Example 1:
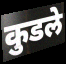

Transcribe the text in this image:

कुडले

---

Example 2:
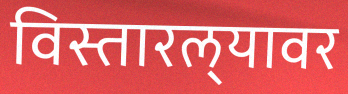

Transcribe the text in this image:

विस्तारल्यावर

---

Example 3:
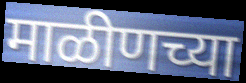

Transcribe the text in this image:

माळीणच्या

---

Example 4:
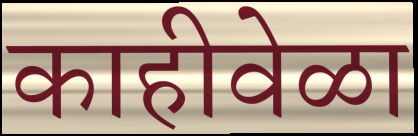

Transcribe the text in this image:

काहीवेळा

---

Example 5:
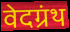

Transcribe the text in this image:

वेदग्रंथ